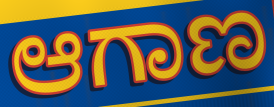
ಆಗಾಣ